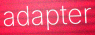
adapter